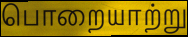
பொறையாற்று